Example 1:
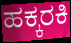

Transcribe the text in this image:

ಹಕ್ಕರಕಿ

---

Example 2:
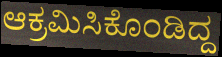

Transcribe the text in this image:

ಆಕ್ರಮಿಸಿಕೊಂಡಿದ್ದ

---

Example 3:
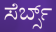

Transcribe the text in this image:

ಸೆರ್ಬ್ಸ್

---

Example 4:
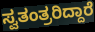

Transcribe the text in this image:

ಸ್ವತಂತ್ರರಿದ್ದಾರೆ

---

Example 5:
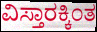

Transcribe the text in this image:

ವಿಸ್ತಾರಕ್ಕಿಂತ